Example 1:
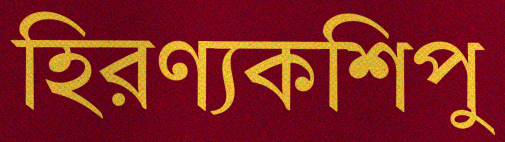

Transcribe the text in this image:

হিরণ্যকশিপু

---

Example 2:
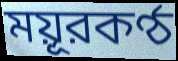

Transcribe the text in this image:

ময়ূরকণ্ঠ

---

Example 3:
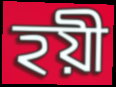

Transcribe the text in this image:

হয়ী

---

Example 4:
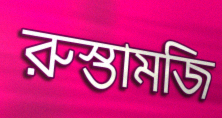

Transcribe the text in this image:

রুস্তামজি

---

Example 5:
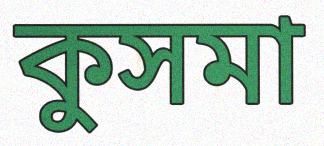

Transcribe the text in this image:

কুসমা